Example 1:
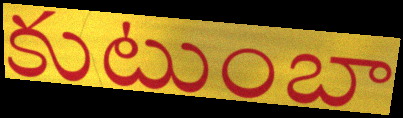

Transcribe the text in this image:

కుటుంబా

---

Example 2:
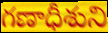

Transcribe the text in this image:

గణాధీశుని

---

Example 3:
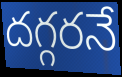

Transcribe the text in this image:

దగ్గరనే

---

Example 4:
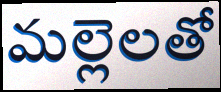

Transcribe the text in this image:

మల్లెలతో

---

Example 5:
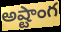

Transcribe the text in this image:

అష్టాంగ